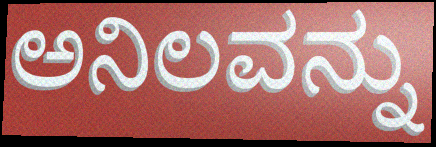
ಅನಿಲವನ್ನು